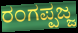
ರಂಗಪ್ಪಜ್ಜ